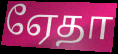
ஏேதா